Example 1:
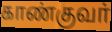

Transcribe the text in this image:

காண்குவர்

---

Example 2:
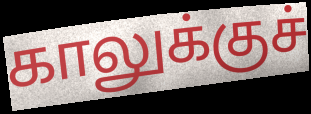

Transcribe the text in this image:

காலுக்குச்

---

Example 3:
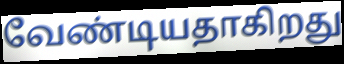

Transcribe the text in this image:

வேண்டியதாகிறது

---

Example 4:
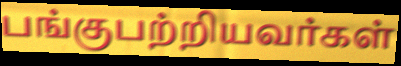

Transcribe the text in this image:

பங்குபற்றியவர்கள்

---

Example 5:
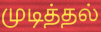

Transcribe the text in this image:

முடித்தல்